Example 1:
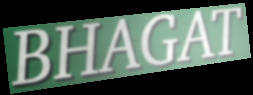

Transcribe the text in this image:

BHAGAT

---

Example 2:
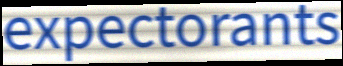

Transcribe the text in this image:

expectorants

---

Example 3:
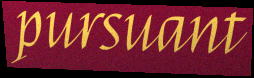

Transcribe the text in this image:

pursuant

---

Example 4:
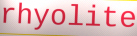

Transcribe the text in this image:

rhyolite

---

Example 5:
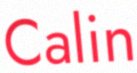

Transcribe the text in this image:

Calin